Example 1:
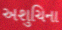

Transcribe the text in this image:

અશુચિના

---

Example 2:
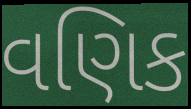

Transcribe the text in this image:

વણિક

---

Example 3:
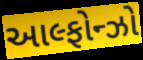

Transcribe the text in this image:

આલ્ફોન્ઝો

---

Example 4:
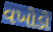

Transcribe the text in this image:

વખોડો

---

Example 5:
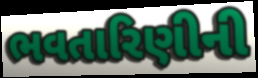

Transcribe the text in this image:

ભવતારિણીની